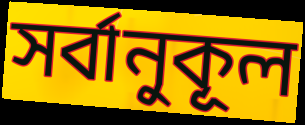
সর্বানুকূল